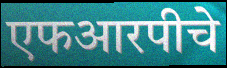
एफआरपीचे